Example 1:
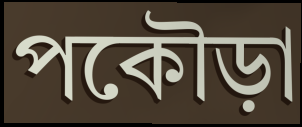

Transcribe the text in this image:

পকৌড়া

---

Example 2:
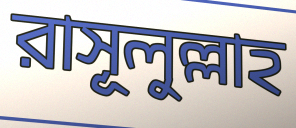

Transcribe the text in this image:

রাসূলুল্লাহ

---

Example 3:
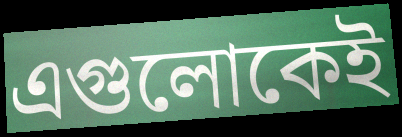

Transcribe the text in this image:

এগুলোকেই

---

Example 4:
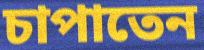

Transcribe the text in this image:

চাপাতেন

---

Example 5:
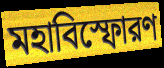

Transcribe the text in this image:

মহাবিস্ফোরণ